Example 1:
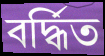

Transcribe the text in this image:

বৰ্দ্ধিত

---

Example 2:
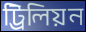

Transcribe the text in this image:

ট্ৰিলিয়ন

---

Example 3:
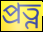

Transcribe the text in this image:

প্ৰত্ন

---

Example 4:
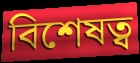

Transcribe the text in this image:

বিশেষত্ব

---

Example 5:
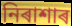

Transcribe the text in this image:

নিৰাশাৰ